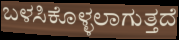
ಬಳಸಿಕೊಳ್ಳಲಾಗುತ್ತದೆ